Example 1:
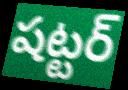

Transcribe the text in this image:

షట్టర్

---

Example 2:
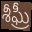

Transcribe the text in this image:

శీఘ్రీ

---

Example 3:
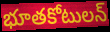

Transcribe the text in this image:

భూతకోటులన్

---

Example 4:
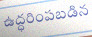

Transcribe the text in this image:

ఉద్ధరింపబడిన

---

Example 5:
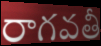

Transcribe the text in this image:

రాగవతీ